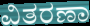
ವಿತರಣಾ